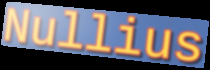
Nullius